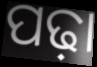
ପଢ଼ା